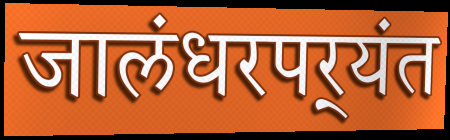
जालंधरपर्यंत